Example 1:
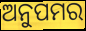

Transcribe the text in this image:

ଅନୁପମର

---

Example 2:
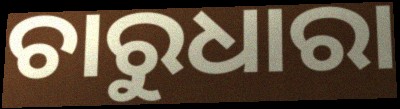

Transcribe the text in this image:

ଚାରୁଧାରା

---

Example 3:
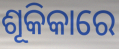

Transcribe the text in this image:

ଶୂକିକାରେ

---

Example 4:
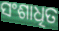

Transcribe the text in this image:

ସଂଶାଧିତ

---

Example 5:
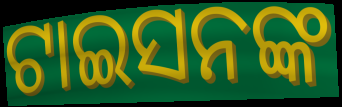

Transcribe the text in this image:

ଟାଇସନଙ୍କ